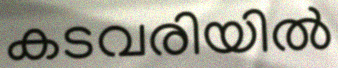
കടവരിയിൽ